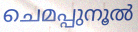
ചെമപ്പുനൂൽ